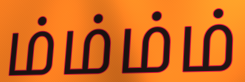
ம்ம்ம்ம்